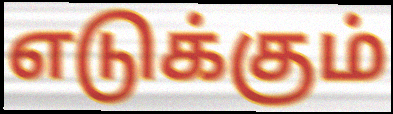
எடுக்கும்